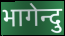
भागेन्दु